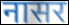
नासर